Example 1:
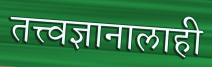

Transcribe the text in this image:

तत्त्वज्ञानालाही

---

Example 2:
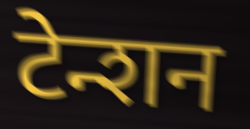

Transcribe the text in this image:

टेन्शन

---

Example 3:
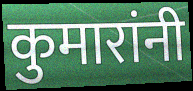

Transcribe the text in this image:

कुमारांनी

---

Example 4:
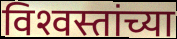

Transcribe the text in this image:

विश्वस्तांच्या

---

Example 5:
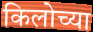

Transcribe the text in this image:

किलोच्या